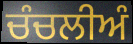
ਚੰਚਲੀਅੰ